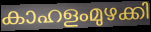
കാഹളംമുഴക്കി